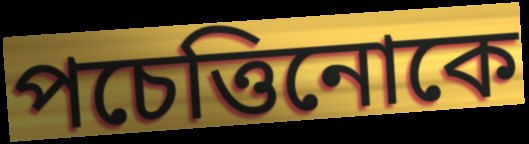
পচেত্তিনোকে